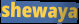
shewaya